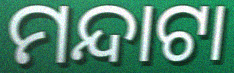
ମନ୍ଦାଟା